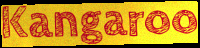
Kangaroo